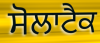
ਸੋਲਾਟੈਕ